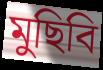
মুছিবি